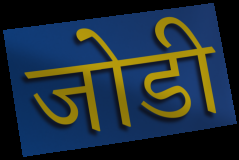
जोडी